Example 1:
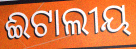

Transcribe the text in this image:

ଈଟାଲୀୟ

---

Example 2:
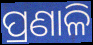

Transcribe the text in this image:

ପ୍ରଣାଳି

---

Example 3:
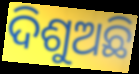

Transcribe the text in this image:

ଦିଶୁଅଛି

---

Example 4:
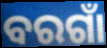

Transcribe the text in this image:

ବରଗାଁ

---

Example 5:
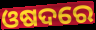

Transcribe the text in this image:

ଓଷଦରେ